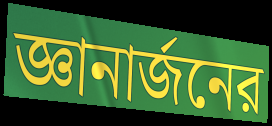
জ্ঞানার্জনের